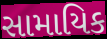
સામાયિક